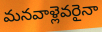
మనవాళ్లెవరైనా